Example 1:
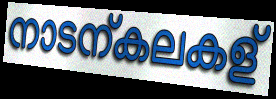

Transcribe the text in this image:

നാടന്കലകള്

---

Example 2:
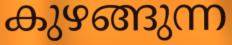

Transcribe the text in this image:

കുഴങ്ങുന്ന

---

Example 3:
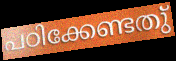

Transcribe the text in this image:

പഠിക്കേണ്ടതു്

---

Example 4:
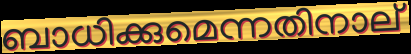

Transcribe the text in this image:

ബാധിക്കുമെന്നതിനാല്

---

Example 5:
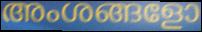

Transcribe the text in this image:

അംശങ്ങളോ